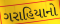
ગરાહિયાનો